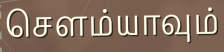
சௌம்யாவும்